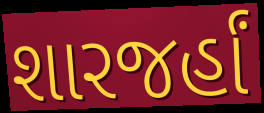
શારજર્હાં